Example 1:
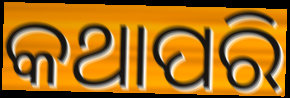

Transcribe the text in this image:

କଥାପରି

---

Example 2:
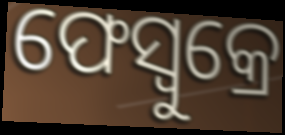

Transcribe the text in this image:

ଫେସ୍ବୁକ୍ରେ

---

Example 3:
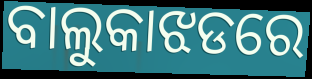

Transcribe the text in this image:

ବାଲୁକାଝଡରେ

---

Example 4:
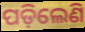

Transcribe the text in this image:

ପଡ଼ିଲେଣି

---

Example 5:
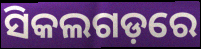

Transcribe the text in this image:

ସିକଲଗଡ଼ରେ